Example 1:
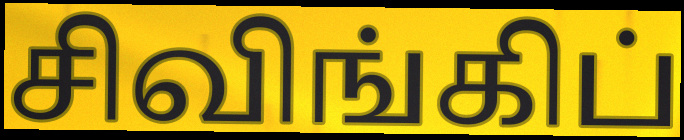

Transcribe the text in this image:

சிவிங்கிப்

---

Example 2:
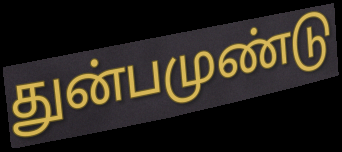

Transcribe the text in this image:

துன்பமுண்டு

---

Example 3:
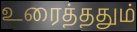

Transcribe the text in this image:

உரைத்ததும்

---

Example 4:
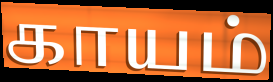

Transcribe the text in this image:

காயம்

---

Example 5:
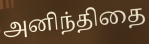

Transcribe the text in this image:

அனிந்திதை